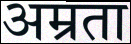
अम्रता